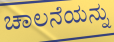
ಚಾಲನೆಯನ್ನು